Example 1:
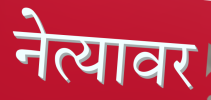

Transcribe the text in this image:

नेत्यावर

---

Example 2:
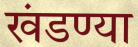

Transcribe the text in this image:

खंडण्या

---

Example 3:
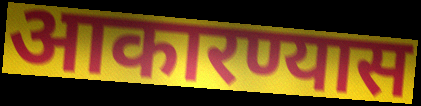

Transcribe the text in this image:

आकारण्यास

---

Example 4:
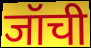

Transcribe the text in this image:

जॉची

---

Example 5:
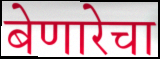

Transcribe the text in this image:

बेणारेचा